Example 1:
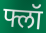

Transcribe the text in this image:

फ्लॉ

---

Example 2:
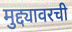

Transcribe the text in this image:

मुद्द्यावरची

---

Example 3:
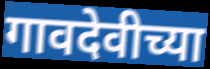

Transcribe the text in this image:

गावदेवीच्या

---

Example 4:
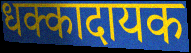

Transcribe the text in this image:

धक्कादायक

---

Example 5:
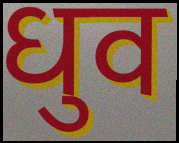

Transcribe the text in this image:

धुव